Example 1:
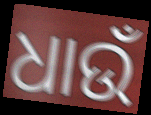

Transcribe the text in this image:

ଧାଉଁ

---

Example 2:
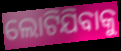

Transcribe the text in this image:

ଲୋଟିଯିବାକୁ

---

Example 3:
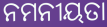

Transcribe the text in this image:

ନମନୀୟତା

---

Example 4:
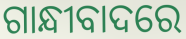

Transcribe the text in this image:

ଗାନ୍ଧୀବାଦରେ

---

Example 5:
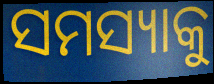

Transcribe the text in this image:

ସମସ୍ଯାକୁ